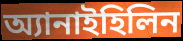
অ্যানাইহিলিন